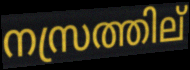
നസ്രത്തില്